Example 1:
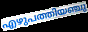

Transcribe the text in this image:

എഴുപത്തിയഞ്ചു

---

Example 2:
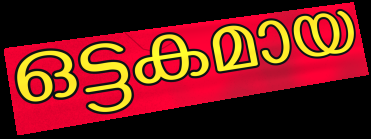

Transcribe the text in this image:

ഒട്ടകമായ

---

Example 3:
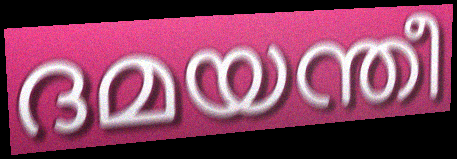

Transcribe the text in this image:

ദമയന്തീ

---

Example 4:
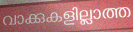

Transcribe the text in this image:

വാക്കുകളില്ലാത്ത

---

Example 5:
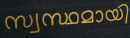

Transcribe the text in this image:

സ്വസ്ഥമായി